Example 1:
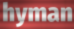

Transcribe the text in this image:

hyman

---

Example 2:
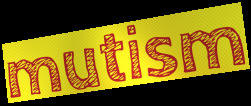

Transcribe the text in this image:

mutism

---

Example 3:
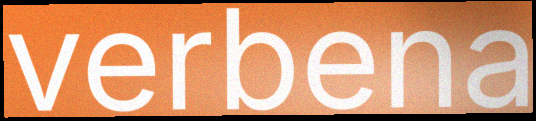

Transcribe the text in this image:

verbena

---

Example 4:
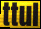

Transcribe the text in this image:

ttul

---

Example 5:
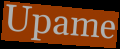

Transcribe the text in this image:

Upame